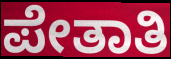
ಪೇತಾತಿ